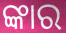
ଙ୍କାର